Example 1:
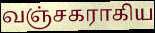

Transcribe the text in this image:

வஞ்சகராகிய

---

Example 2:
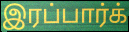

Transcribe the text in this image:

இரப்பார்க்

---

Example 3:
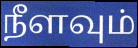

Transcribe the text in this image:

நீளவும்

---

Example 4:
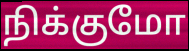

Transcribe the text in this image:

நிக்குமோ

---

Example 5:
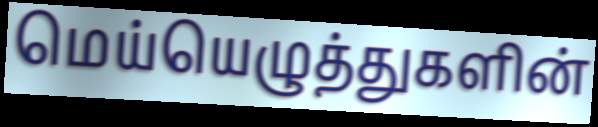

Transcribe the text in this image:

மெய்யெழுத்துகளின்